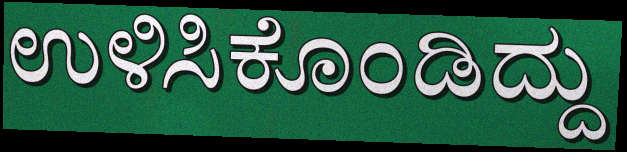
ಉಳಿಸಿಕೊಂಡಿದ್ದು